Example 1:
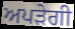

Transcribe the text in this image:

ਅਪੜੇਗੀ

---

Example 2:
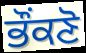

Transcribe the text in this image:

ਭੌਂਕਣੋ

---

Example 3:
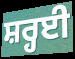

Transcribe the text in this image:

ਸ਼ਰ੍ਹਈ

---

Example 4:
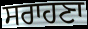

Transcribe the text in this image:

ਸਰਾਹਣਾ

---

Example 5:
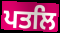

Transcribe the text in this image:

ਪਤਲਿ